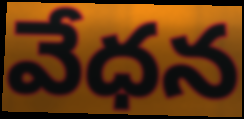
వేధన